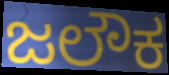
ಜಲೌಕ